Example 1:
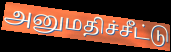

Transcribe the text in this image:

அனுமதிச்சீட்டு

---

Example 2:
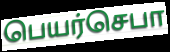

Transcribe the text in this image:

பெயர்செபா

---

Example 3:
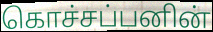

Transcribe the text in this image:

கொச்சப்பனின்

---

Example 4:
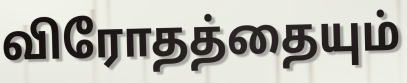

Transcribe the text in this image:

விரோதத்தையும்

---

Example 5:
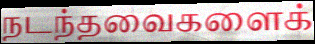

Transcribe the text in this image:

நடந்தவைகளைக்